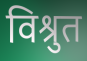
विश्रुत